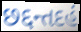
છદ્દન્તદહં